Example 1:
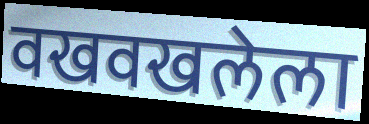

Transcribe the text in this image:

वखवखलेला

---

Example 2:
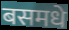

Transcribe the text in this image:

बसमधे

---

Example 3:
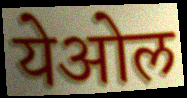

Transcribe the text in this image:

येओल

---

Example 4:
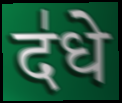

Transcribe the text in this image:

द॑धे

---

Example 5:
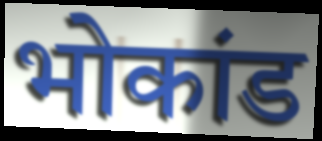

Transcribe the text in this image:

भोकांड